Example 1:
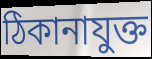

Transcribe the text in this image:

ঠিকানাযুক্ত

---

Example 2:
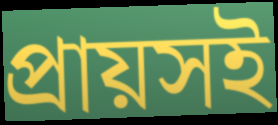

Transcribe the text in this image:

প্রায়সই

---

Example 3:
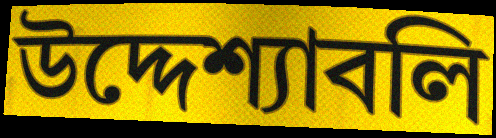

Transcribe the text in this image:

উদ্দেশ্যাবলি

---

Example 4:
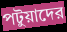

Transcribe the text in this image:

পটুয়াদের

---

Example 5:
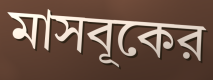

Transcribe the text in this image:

মাসবূকের